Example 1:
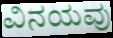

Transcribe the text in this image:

ವಿನಯವು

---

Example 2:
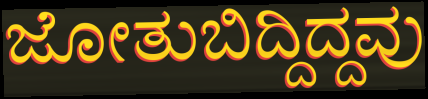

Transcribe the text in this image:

ಜೋತುಬಿದ್ದಿದ್ದವು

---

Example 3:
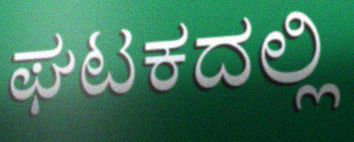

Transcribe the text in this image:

ಘಟಕದಲ್ಲಿ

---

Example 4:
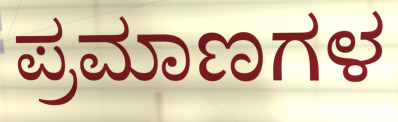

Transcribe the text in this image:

ಪ್ರಮಾಣಗಳ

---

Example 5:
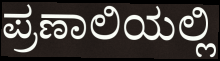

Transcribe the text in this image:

ಪ್ರಣಾಲಿಯಲ್ಲಿ